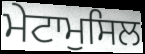
ਮੇਟਾਮੁਸਿਲ